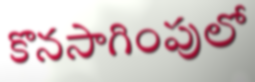
కొనసాగింపులో